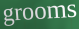
grooms